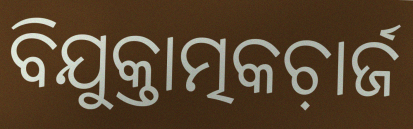
ବିଯୁକ୍ତାତ୍ମକଚ଼ାର୍ଜ